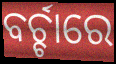
ବର୍ଚ୍ଚାରେ